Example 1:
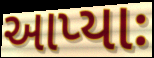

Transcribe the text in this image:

આપ્યાઃ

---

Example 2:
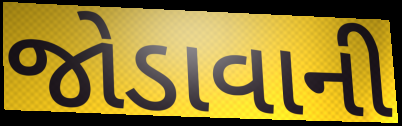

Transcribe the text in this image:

જોડાવાની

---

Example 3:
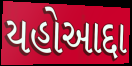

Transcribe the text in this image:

યહોઆદ્દા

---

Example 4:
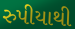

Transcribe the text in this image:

રુપીયાથી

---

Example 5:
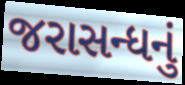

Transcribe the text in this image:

જરાસન્ધનું